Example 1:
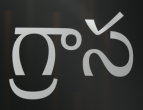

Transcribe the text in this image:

గ్రాస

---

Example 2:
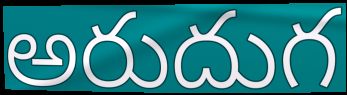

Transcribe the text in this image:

అరుదుగ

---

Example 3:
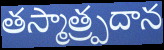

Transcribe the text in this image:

తస్మాత్ర్పదాన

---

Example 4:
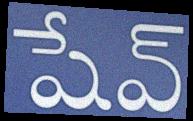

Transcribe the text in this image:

షేవ్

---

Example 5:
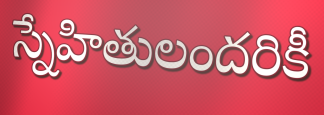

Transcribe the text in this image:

స్నేహితులందరికీ